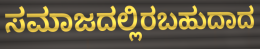
ಸಮಾಜದಲ್ಲಿರಬಹುದಾದ